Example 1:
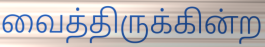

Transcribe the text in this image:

வைத்திருக்கின்ற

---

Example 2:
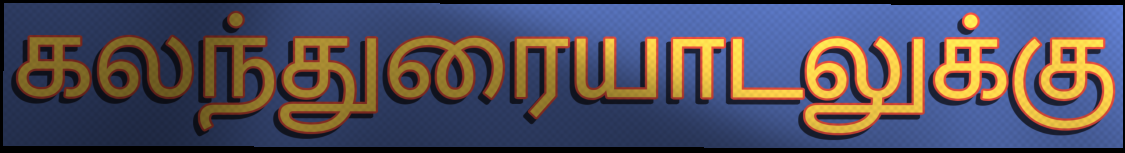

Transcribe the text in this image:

கலந்துரையாடலுக்கு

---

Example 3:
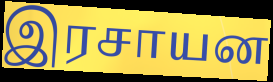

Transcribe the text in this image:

இரசாயன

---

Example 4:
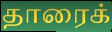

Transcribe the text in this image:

தாரைக்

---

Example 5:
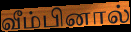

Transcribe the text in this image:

வீம்பினால்